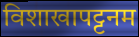
विशाखापट्टनम